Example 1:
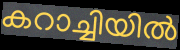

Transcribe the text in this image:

കറാച്ചിയിൽ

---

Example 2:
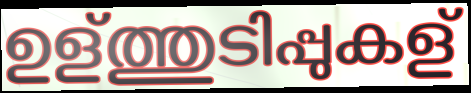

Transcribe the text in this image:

ഉള്ത്തുടിപ്പുകള്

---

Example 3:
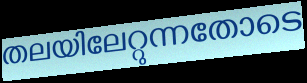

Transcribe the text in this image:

തലയിലേറ്റുന്നതോടെ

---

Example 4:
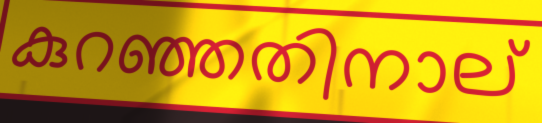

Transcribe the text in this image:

കുറഞ്ഞതിനാല്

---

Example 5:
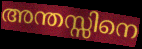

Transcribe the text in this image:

അന്തസ്സിനെ